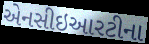
એનસીઇઆરટીના